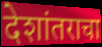
देशांतराचा